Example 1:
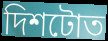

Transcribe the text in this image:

দিশটোত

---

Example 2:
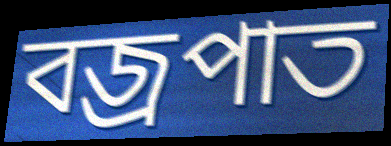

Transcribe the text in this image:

বজ্ৰপাত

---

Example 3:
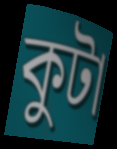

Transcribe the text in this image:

কুটা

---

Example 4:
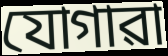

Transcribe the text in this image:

যোগাৱা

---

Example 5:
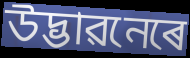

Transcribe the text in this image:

উদ্ভাৱনেৰে